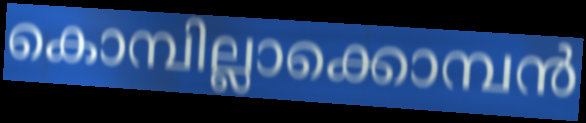
കൊമ്പില്ലാക്കൊമ്പൻ